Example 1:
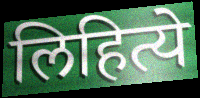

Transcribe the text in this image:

लिहित्ये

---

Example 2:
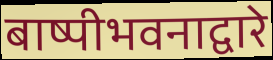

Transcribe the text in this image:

बाष्पीभवनाद्वारे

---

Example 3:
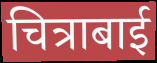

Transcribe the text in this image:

चित्राबाई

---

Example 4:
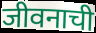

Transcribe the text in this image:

जीवनाची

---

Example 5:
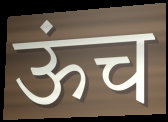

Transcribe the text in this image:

ऊंच